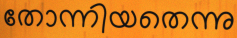
തോന്നിയതെന്നു